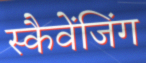
स्कैवेंजिंग